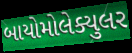
બાયોમોલેક્યુલર